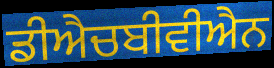
ਡੀਐਚਬੀਵੀਐਨ